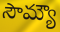
సౌమ్యౌ